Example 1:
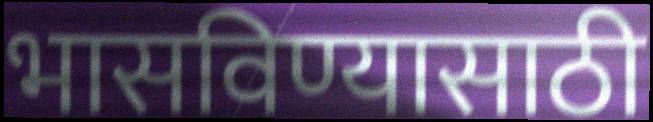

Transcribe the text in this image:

भासविण्यासाठी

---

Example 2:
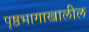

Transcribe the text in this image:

पृष्ठभागाखालील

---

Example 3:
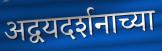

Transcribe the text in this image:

अद्वयदर्शनाच्या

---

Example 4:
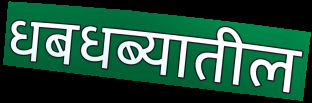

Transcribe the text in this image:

धबधब्यातील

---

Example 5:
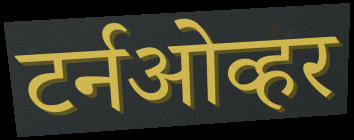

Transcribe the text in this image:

टर्नओव्हर